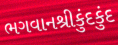
ભગવાનશ્રીકુંદકુંદ